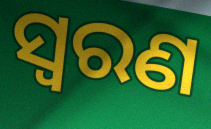
ସ୍ୱରଣ